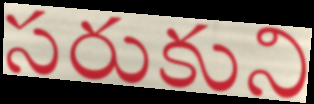
సరుకుని